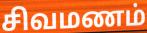
சிவமணம்